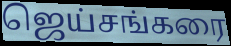
ஜெய்சங்கரை